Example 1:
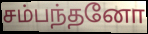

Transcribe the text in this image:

சம்பந்தனோ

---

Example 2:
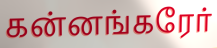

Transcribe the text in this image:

கன்னங்கரேர்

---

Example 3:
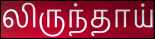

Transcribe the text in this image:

லிருந்தாய்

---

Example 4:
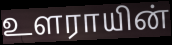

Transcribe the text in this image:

உளராயின்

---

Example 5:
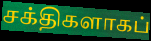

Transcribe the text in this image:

சக்திகளாகப்